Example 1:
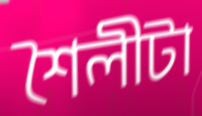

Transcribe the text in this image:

শৈলীটা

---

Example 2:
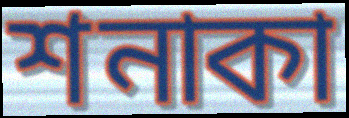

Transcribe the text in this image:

শনাকা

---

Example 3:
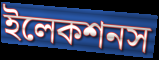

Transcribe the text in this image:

ইলেকশনস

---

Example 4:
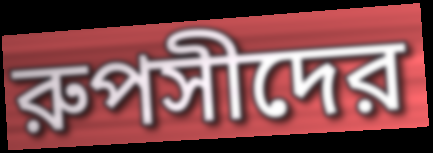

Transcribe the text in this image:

রুপসীদের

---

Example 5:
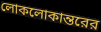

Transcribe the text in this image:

লোকলোকান্তরের